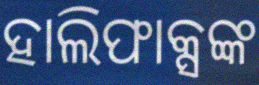
ହାଲିଫାକ୍ସଙ୍କ